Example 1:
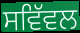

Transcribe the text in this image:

ਸਵਿੱਵਲ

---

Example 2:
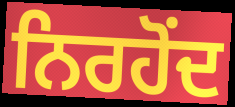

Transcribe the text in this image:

ਨਿਰਹੋਂਦ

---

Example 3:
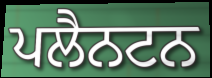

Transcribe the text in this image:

ਪਲੈਨਟਨ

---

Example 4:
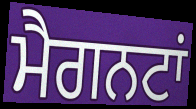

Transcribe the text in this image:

ਮੈਗਨਟਾਂ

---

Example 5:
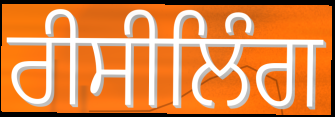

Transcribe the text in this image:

ਰੀਸੀਲਿੰਗ